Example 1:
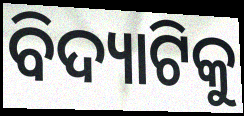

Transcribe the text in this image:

ବିଦ୍ୟାଟିକୁ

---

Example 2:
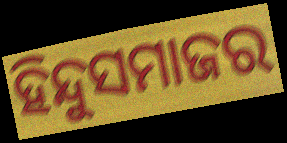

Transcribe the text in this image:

ହିନ୍ଦୁସମାଜର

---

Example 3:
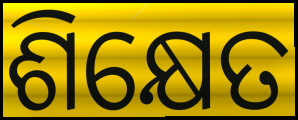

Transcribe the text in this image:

ଶିକ୍ଷେତ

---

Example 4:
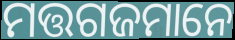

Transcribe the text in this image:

ମତ୍ତଗଜମାନେ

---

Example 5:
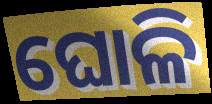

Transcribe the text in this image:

ଘୋଳି